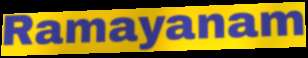
Ramayanam